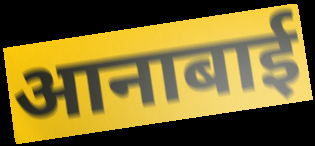
आनाबाई